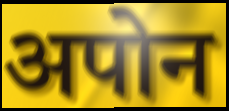
अपोन